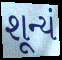
શૂન્યં